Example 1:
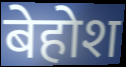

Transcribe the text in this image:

बेहोश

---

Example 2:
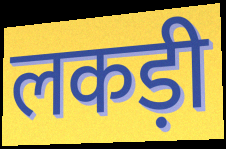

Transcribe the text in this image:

लकड़ी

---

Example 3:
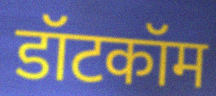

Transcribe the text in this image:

डॉटकॉम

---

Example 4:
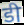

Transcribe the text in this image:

डी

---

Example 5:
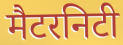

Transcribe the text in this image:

मैटरनिटी